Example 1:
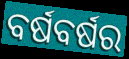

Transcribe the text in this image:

ବର୍ଷବର୍ଷର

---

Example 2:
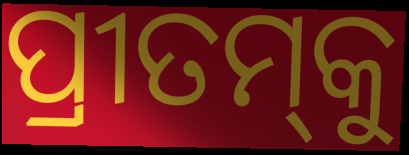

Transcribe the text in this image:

ପ୍ରୀତମ୍‌କୁ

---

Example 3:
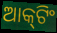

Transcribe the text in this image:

ଆକ୍‌ଟିଂ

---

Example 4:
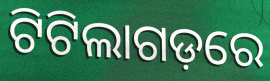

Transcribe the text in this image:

ଟିଟିଲାଗଡ଼ରେ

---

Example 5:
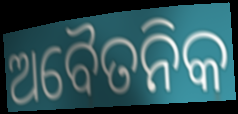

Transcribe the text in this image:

ଅବୈତନିକ